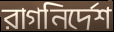
রাগনির্দেশ